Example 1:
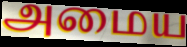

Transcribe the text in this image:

அமைய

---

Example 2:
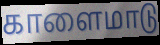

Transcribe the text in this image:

காளைமாடு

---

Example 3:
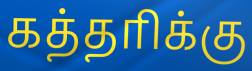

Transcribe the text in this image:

கத்தரிக்கு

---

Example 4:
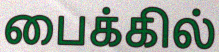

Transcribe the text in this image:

பைக்கில்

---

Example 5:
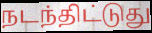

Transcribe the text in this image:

நடந்திட்டுது